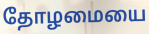
தோழமையை